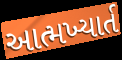
આત્મખ્યાર્ત